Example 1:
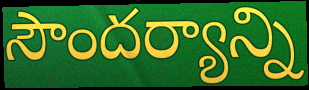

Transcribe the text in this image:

సౌందర్యాన్ని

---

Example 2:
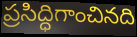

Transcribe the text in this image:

ప్రసిద్ధిగాంచినది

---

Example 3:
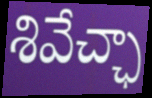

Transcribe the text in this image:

శివేచ్ఛా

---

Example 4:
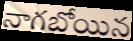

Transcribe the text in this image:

నాగబోయిన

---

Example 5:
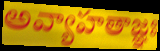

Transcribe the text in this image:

అవ్యాహతాజ్ఞః